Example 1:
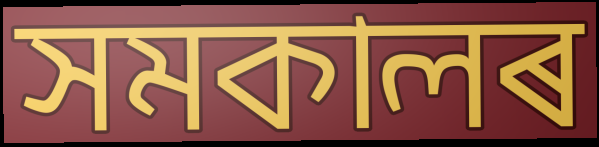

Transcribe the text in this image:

সমকালৰ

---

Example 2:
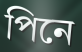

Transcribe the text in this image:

পিনে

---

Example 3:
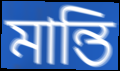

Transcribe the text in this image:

মান্তি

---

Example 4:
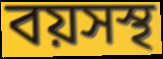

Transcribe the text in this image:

বয়সস্থ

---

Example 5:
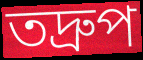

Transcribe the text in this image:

তদ্ৰুপ